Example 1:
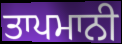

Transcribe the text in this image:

ਤਾਪਮਾਨੀ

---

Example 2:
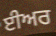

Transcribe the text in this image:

ਈਅਰ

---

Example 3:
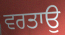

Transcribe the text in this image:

ਵਰਤਾਉ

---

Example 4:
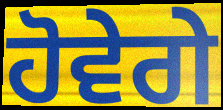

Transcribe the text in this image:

ਹੋਵੇਗੇ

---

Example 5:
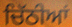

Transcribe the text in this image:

ਚਿੱਠੀਆਂ